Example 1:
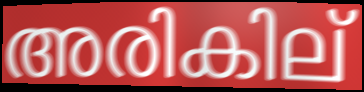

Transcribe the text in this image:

അരികില്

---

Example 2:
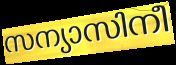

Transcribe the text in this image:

സന്യാസിനീ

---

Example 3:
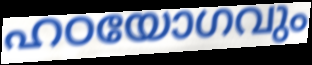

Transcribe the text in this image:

ഹഠയോഗവും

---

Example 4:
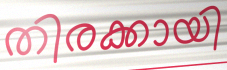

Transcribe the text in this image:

തിരക്കായി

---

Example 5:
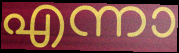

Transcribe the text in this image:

എന്നാ